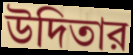
উদিতার